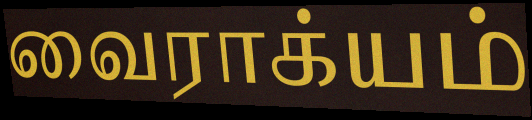
வைராக்யம்